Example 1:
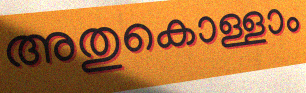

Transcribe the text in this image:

അതുകൊള്ളാം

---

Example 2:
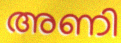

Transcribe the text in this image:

അണി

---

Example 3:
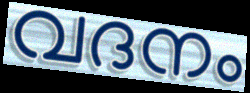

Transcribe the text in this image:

വദനം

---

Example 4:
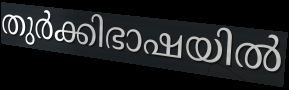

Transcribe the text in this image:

തുർക്കിഭാഷയിൽ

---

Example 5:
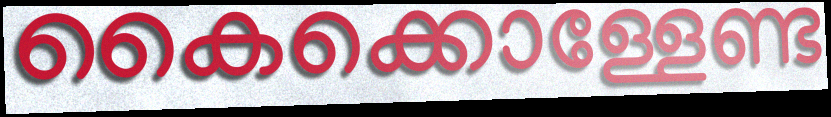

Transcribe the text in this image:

കൈക്കൊള്ളേണ്ട